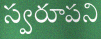
స్వరూపని